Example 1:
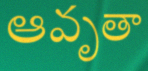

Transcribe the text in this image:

ఆవృతా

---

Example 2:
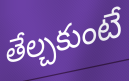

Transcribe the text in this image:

తేల్చకుంటే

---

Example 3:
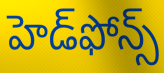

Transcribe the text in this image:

హెడ్‌ఫోన్స్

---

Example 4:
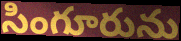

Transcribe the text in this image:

సింగూరును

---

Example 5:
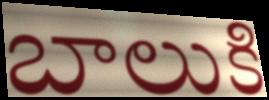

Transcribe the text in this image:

బాలుకి